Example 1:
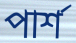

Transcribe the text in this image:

পার্শ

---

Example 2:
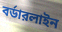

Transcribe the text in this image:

বর্ডারলাইন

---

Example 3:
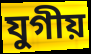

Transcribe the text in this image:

যুগীয়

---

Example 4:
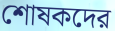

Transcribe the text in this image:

শোষকদের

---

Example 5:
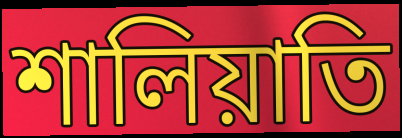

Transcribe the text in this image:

শালিয়াতি